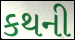
કથની